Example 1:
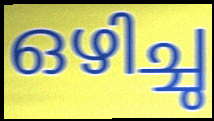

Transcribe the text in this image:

ഒഴിച്ചു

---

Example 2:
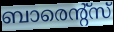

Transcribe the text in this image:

ബാരെന്റ്സ്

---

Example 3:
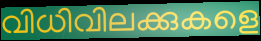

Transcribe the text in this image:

വിധിവിലക്കുകളെ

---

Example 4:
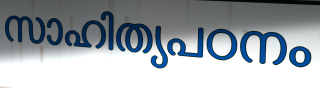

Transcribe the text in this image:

സാഹിത്യപഠനം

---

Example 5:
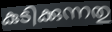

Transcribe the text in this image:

കുടിക്കുന്നതു